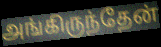
அங்கிருந்தேன்